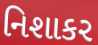
નિશાકર